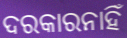
ଦରକାରନାହିଁ